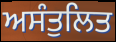
ਅਸੰਤੁਲਿਤ